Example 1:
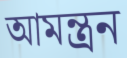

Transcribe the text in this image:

আমন্ত্রন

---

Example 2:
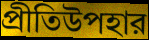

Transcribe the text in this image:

প্রীতিউপহার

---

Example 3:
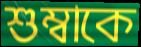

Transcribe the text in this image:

শুম্বাকে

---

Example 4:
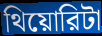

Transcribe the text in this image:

থিয়োরিটা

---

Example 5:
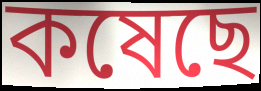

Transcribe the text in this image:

কষেছে